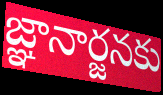
జ్ఞానార్జనకు